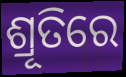
ଶ୍ରୂତିରେ